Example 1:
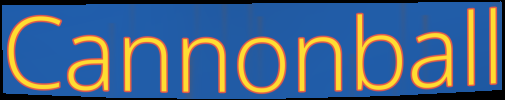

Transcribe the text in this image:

Cannonball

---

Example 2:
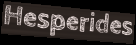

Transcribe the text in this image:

Hesperides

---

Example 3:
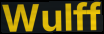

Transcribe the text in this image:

Wulff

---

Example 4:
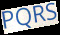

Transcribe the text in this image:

PQRS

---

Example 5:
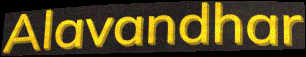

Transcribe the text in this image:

Alavandhar